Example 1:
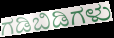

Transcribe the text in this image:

ಗಡಿಬಿಡಿಗಳು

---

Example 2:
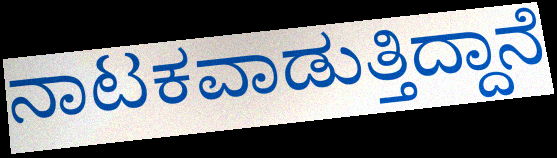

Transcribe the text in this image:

ನಾಟಕವಾಡುತ್ತಿದ್ದಾನೆ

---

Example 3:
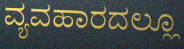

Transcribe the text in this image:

ವ್ಯವಹಾರದಲ್ಲೂ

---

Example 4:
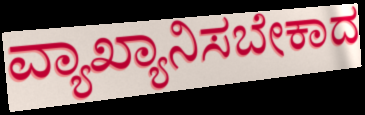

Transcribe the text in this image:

ವ್ಯಾಖ್ಯಾನಿಸಬೇಕಾದ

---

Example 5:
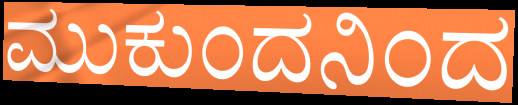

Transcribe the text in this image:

ಮುಕುಂದನಿಂದ